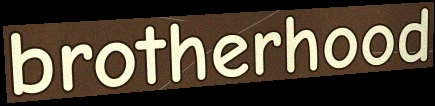
brotherhood